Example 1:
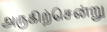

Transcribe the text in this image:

அருகிற்சென்று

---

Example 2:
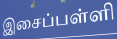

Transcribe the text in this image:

இசைப்பள்ளி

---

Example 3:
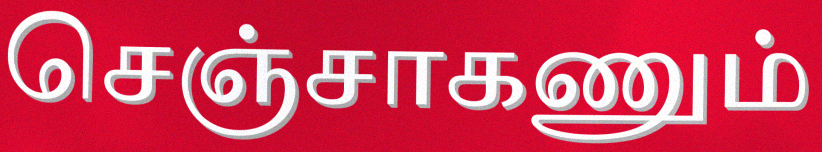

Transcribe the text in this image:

செஞ்சாகணும்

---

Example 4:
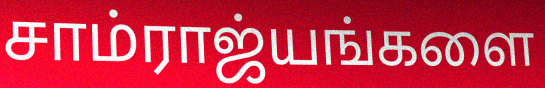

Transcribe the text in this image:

சாம்ராஜ்யங்களை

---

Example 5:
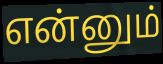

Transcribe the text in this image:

என்னும்